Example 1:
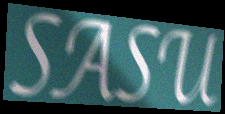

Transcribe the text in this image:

SASU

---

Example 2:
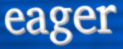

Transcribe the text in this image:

eager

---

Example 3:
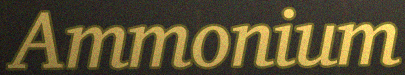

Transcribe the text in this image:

Ammonium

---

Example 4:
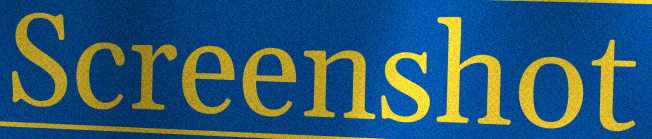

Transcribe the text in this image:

Screenshot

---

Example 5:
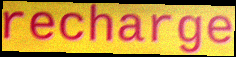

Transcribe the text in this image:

recharge